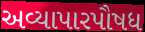
અવ્યાપારપૌષધ